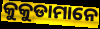
କୁକୁଡାମାନେ